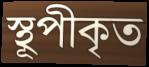
স্থূপীকৃত